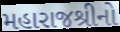
મહારાજશ્રીનો